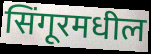
सिंगूरमधील